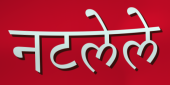
नटलेले